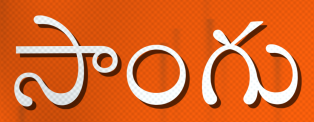
సాంగు